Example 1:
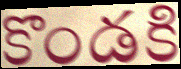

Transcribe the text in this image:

కొండకి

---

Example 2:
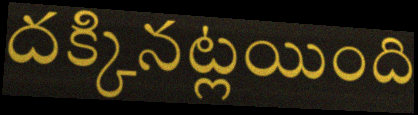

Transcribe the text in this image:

దక్కినట్లయింది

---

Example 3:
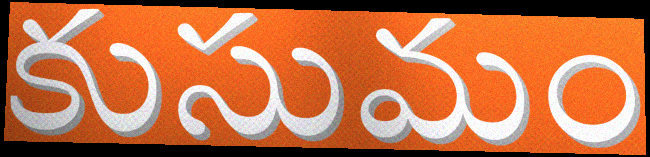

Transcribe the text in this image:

కుసుమం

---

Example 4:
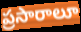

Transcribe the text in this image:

ప్రసారాలూ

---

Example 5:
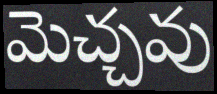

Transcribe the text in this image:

మెచ్చవు